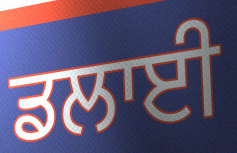
ਡਲਾਈ